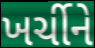
ખર્ચીને